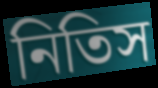
নিতিস